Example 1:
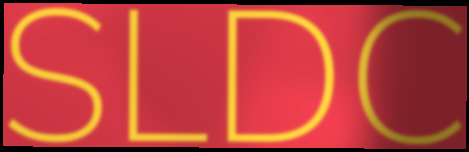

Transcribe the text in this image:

SLDC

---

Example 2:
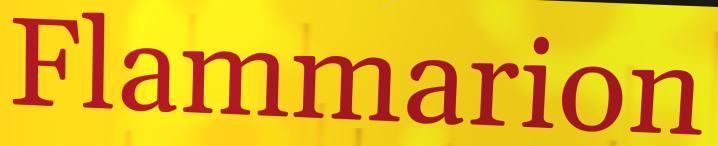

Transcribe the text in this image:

Flammarion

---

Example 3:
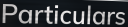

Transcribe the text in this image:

Particulars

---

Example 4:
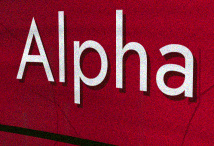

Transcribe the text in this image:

Alpha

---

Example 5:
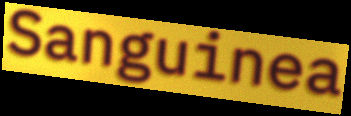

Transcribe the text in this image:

Sanguinea